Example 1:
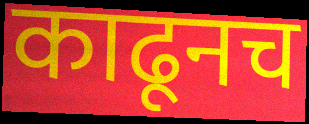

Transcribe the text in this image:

काढूनच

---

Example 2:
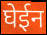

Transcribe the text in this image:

घेईन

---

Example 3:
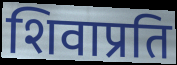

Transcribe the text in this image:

शिवाप्रति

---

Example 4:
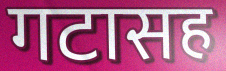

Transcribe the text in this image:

गटासह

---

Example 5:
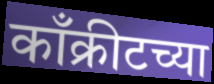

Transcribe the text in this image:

काँक्रीटच्या